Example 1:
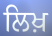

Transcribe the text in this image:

ਲਿਖ਼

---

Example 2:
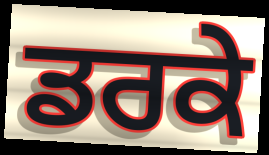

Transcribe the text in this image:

ਡਰਕੇ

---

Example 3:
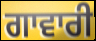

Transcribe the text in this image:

ਗਾਵਾਰੀ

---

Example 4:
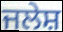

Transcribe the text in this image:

ਜਲੇਸ਼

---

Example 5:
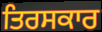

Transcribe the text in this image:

ਤਿਰਸਕਾਰ